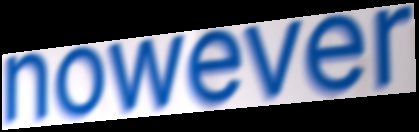
nowever